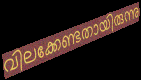
വിലക്കേണ്ടതായിരുന്നു